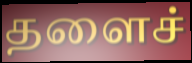
தளைச்